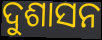
ଦୁଶାସନ